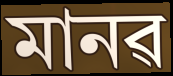
মানৱ